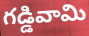
గడ్డివామి